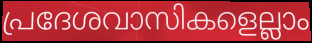
പ്രദേശവാസികളെല്ലാം